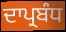
ਦਾਪ੍ਰਬੰਧ